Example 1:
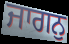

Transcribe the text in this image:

ਜਾਗਨੁ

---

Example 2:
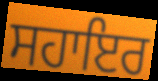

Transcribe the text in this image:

ਸਹਾਇਰ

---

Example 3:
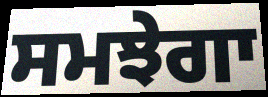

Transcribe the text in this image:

ਸਮਝੇਗਾ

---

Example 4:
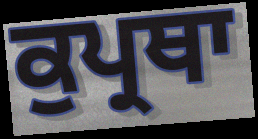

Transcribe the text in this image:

ਕੁਪ੍ਰਥਾ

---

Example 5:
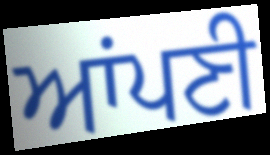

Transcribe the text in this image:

ਆਂਪਣੀ